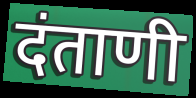
दंताणी